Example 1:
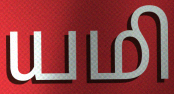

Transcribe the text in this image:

யமி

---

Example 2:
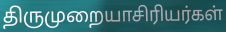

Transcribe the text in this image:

திருமுறையாசிரியர்கள்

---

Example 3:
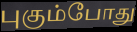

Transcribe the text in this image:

புகும்போது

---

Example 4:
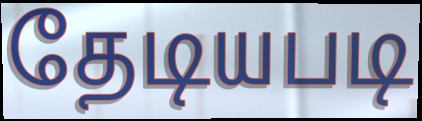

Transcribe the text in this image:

தேடியபடி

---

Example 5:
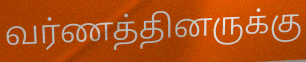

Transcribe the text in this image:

வர்ணத்தினருக்கு